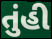
તુંહી